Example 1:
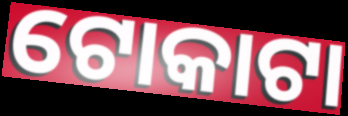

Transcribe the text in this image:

ଟୋକାଟା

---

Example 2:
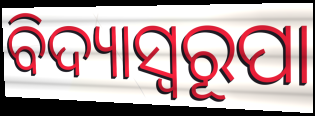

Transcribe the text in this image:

ବିଦ୍ୟାସ୍ୱରୂପା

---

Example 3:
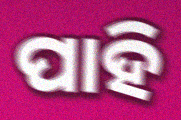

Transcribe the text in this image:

ପାହି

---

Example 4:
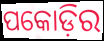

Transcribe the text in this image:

ପକୋଡ଼ିର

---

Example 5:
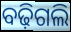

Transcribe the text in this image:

ବଢ଼ିଗଲି